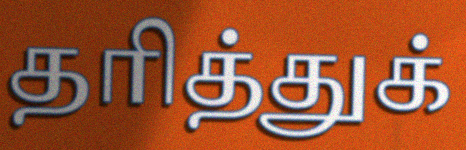
தரித்துக்